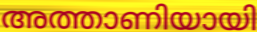
അത്താണിയായി